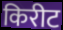
किरीट